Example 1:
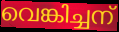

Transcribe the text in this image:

വെങ്കിച്ചന്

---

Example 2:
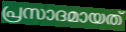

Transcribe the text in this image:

പ്രസാദമായത്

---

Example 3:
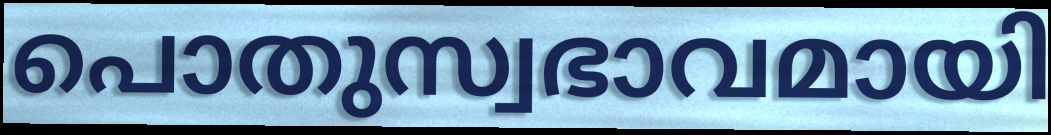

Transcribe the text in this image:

പൊതുസ്വഭാവമായി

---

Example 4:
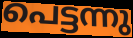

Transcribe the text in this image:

പെട്ടന്നു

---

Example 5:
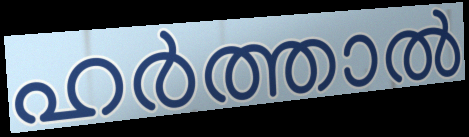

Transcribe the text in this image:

ഹർത്താൽ